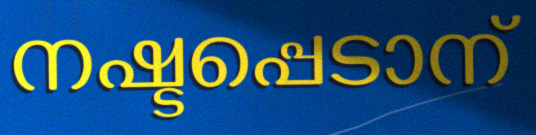
നഷ്ടപ്പെടാന്